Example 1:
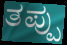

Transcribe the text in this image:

ತಪ್ಪು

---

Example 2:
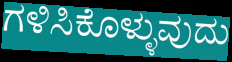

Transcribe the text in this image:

ಗಳಿಸಿಕೊಳ್ಳುವುದು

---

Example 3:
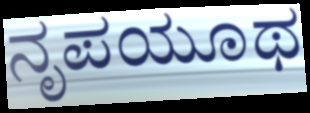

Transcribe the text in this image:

ನೃಪಯೂಥ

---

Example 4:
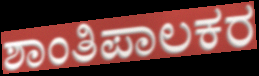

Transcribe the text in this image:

ಶಾಂತಿಪಾಲಕರ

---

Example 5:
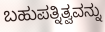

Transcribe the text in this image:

ಬಹುಪತ್ನಿತ್ವವನ್ನು